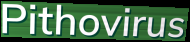
Pithovirus